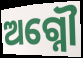
ଅଗ୍ନୌ